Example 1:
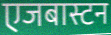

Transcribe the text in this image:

एजबास्टन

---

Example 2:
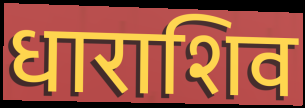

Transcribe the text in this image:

धाराशिव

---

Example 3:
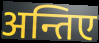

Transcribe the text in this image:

अन्तिए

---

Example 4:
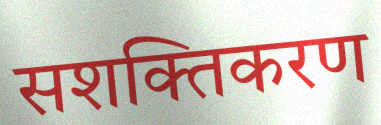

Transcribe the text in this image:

सशक्तिकरण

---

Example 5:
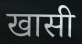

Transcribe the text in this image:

खासी